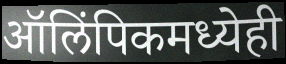
ऑलिंपिकमध्येही